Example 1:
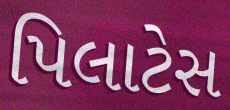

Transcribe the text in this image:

પિલાટેસ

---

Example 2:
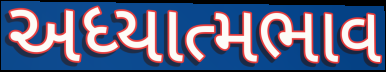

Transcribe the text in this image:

અધ્યાત્મભાવ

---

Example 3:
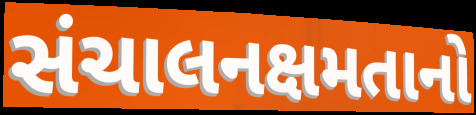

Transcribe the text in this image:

સંચાલનક્ષમતાનો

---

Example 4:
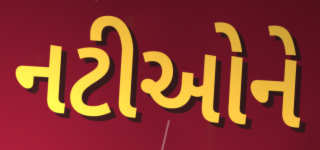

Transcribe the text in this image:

નટીઓને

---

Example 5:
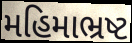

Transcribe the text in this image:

મહિમાભ્રષ્ટ